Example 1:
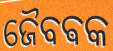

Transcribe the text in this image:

ଜୈବଵକ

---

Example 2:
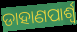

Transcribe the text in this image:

ଡାହାଣପାର୍ଶ୍ୱ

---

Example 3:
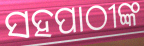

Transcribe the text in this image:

ସହପାଠୀଙ୍କ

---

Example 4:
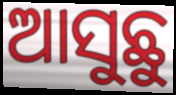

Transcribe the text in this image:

ଆସୁଛୁ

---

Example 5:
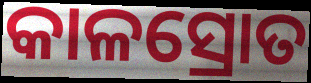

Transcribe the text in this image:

କାଳସ୍ରୋତ